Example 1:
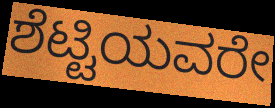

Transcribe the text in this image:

ಶೆಟ್ಟಿಯವರೇ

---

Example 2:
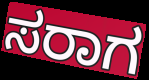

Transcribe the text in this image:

ಸರಾಗ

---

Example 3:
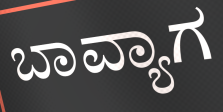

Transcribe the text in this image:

ಬಾವ್ಯಾಗ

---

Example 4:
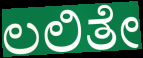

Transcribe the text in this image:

ಲಲಿತೇ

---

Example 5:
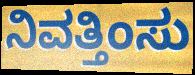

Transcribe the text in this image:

ನಿವತ್ತಿಂಸು